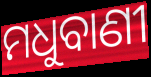
ମଧୁବାଣୀ